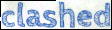
clashed